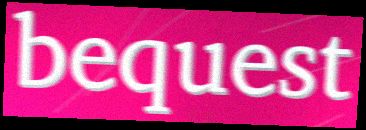
bequest